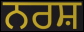
ਨਰਸ਼